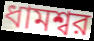
ধামশ্বর